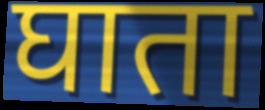
घाता